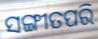
ସଙ୍ଗୀତପରି